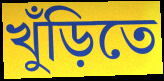
খুঁড়িতে